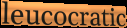
leucocratic